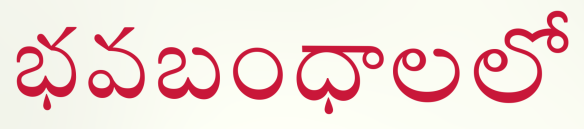
భవబంధాలలో